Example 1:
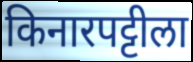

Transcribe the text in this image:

किनारपट्टीला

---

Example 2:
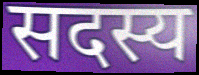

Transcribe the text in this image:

सदस्‍य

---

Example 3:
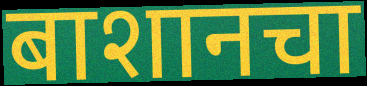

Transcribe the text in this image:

बाशानचा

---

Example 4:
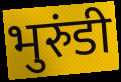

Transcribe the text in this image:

भुरुंडी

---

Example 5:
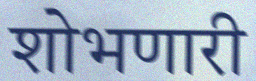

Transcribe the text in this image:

शोभणारी